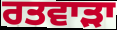
ਰਤਵਾੜਾ